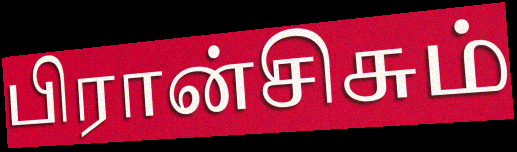
பிரான்சிசும்